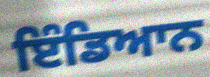
ਇੰਡਿਆਨ